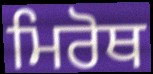
ਮਿਰੋਥ